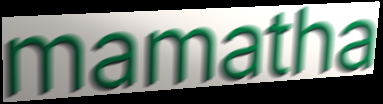
mamatha